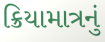
ક્રિયામાત્રનું